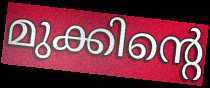
മുക്കിന്റെ